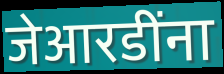
जेआरडींना